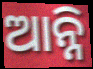
ଆନ୍ନି